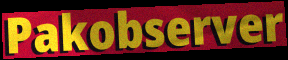
Pakobserver